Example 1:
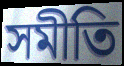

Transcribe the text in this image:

সমীতি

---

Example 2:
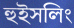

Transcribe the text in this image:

হুইসলিং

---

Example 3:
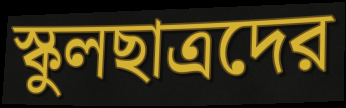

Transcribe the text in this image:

স্কুলছাত্রদের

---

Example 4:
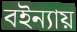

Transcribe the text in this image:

বইন্যায়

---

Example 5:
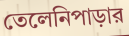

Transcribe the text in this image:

তেলেনিপাড়ার